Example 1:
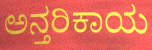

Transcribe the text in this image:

ಅನ್ತರಿಕಾಯ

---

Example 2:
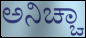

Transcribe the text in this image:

ಅನಿಚ್ಚಾ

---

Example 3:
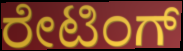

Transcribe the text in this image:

ರೇಟಿಂಗ್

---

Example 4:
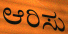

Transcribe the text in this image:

ಆರಿಸು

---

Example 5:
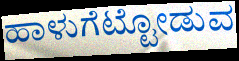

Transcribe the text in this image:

ಹಾಳುಗೆಟ್ಟೋಡುವ